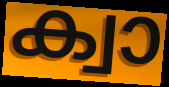
ക്വാ